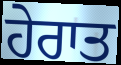
ਹੇਰਾਤ